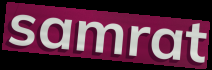
samrat